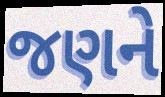
જણને